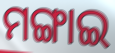
ମଙ୍ଗାଇ